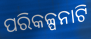
ପରିକଳ୍ପନାଟି